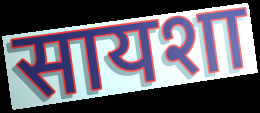
सायशा